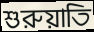
শুরুয়াতি